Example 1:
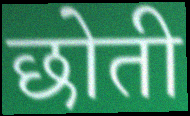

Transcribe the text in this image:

छोती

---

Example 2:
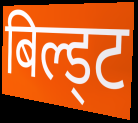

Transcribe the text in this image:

बिल्ड्ट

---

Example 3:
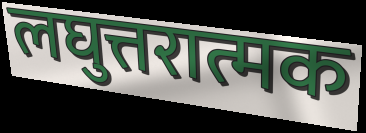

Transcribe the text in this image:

लघुत्तरात्मक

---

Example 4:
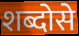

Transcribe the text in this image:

शब्दोसे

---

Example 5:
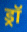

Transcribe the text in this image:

ड्रॉ